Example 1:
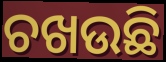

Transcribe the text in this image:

ଚଖଉଛି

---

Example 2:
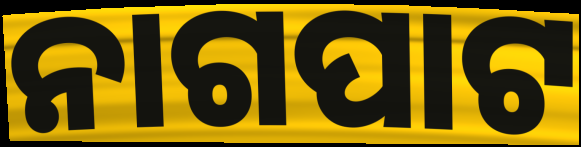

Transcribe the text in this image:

ନାଗପାଟ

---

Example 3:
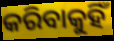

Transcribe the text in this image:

କରିବାକୁହିଁ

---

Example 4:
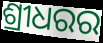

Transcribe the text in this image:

ଶ୍ରୀଧରର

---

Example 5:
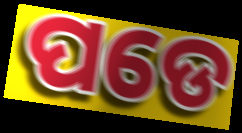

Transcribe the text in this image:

ପଡେ